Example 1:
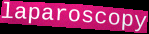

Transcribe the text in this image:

laparoscopy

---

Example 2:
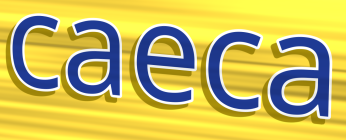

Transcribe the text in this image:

caeca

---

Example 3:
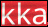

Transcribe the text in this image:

kka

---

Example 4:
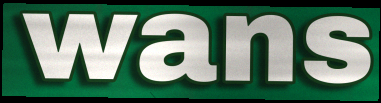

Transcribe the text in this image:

wans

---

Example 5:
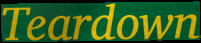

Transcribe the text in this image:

Teardown